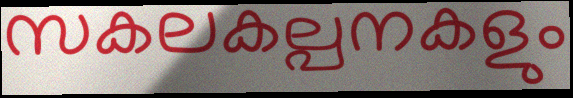
സകലകല്പനകളും